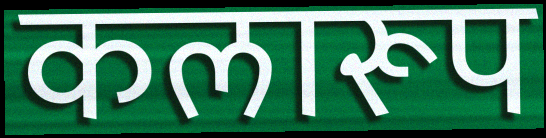
कलारूप